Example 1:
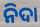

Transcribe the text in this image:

ନିଦା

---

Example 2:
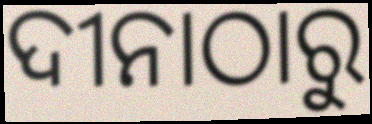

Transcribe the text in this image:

ଦୀନାଠାରୁ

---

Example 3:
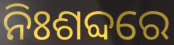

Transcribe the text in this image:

ନିଃଶବ୍ଦରେ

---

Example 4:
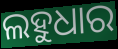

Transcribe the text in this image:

ଲହୁଧାର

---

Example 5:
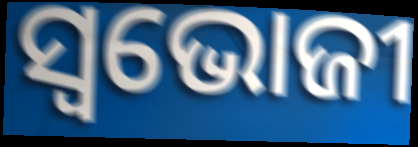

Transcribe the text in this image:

ସ୍ବଭୋଜୀ